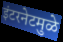
इंटरनेटमुळे